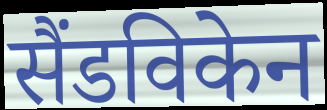
सैंडविकेन